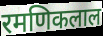
रमणिकलाल